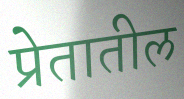
प्रेतातील